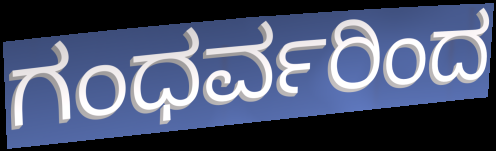
ಗಂಧರ್ವರಿಂದ